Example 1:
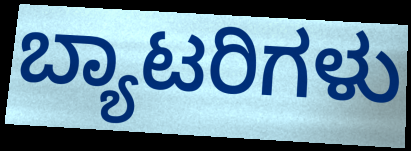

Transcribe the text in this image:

ಬ್ಯಾಟರಿಗಳು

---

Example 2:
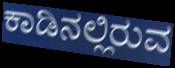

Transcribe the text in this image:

ಕಾಡಿನಲ್ಲಿರುವ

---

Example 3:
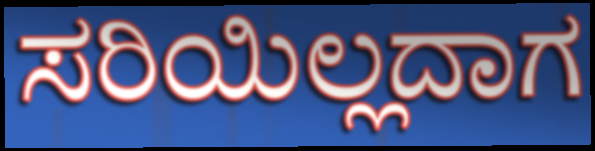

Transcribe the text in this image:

ಸರಿಯಿಲ್ಲದಾಗ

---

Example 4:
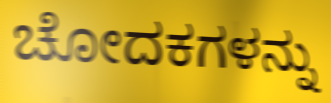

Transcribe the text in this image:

ಚೋದಕಗಳನ್ನು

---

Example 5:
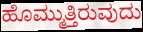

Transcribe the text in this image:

ಹೊಮ್ಮುತ್ತಿರುವುದು